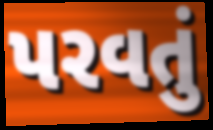
પરવતું